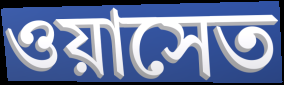
ওয়াসেত